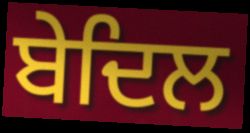
ਬੇਦਿਲ